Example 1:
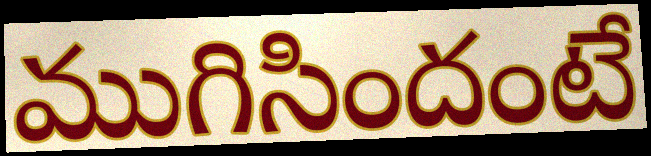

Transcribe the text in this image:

ముగిసిందంటే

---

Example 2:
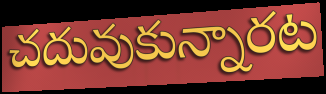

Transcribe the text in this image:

చదువుకున్నారట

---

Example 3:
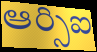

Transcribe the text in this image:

ఆర్సిఐ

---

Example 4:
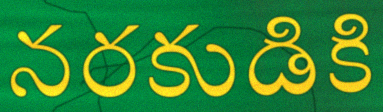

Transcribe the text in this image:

నరకుడికి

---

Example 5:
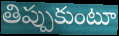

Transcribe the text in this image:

తిప్పుకుంటూ